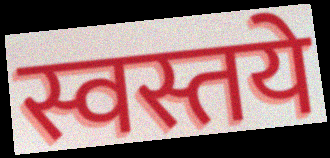
स्वस्तये